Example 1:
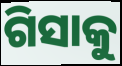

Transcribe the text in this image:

ଗିସାକୁ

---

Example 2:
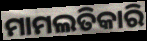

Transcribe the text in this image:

ମାମଲତିକାରି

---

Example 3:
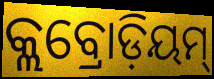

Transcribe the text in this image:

କ୍ଲବ୍ରୋଡ଼ିୟମ୍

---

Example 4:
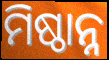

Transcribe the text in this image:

ମିଷ୍ଠାନ୍ନ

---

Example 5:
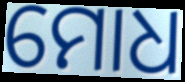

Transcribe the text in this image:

ମୋଧ